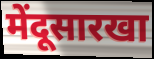
मेंदूसारखा